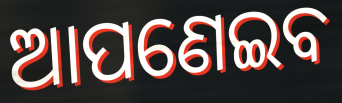
ଆପଣେଇବ